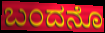
ಬಂದನೊ